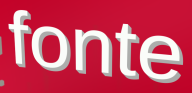
fonte